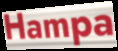
Hampa